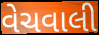
વેચવાલી